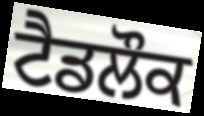
ਟੈਡਲੌਕ